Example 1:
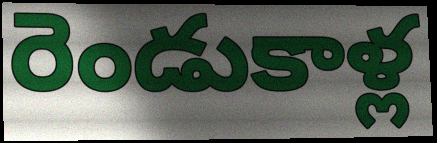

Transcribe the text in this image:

రెండుకాళ్ల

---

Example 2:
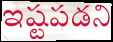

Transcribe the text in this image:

ఇష్టపడని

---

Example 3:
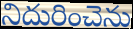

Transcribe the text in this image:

నిదురించెను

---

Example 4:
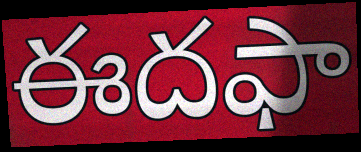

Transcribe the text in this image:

ఈదఫా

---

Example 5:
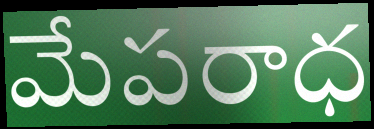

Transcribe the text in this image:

మేపరాధ